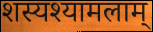
शस्यश्यामलाम्